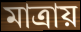
মাত্রায়